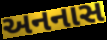
અનનાસ